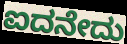
ಐದನೇದು